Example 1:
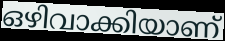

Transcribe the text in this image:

ഒഴിവാക്കിയാണ്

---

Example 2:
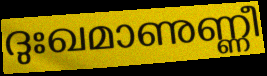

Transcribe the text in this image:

ദുഃഖമാണുണ്ണീ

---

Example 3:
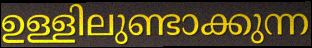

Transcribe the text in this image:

ഉള്ളിലുണ്ടാക്കുന്ന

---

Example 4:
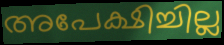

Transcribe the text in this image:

അപേക്ഷിച്ചില്ല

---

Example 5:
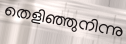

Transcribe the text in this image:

തെളിഞ്ഞുനിന്നു